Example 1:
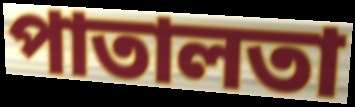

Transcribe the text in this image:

পাতালতা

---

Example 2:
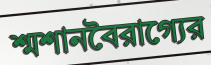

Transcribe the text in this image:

শ্মশানবৈরাগ্যের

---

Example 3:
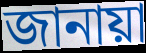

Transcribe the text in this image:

জানায়া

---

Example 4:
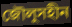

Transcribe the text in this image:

জৌলুসহীন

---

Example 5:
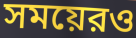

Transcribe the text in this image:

সময়েরও